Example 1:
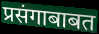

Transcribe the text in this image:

प्रसंगाबाबत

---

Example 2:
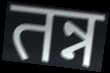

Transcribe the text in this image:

तन्न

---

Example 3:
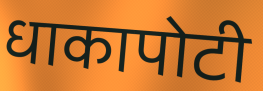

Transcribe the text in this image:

धाकापोटी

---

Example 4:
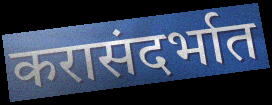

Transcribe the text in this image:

करासंदर्भात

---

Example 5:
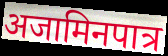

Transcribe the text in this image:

अजामिनपात्र